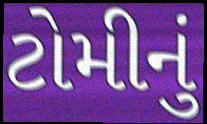
ટોમીનું